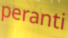
peranti